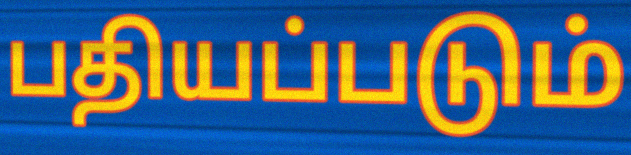
பதியப்படும்